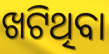
ଖଟିଥିବା